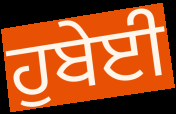
ਹੁਬੇਈ